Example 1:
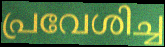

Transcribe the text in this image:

പ്രവേശിച്ച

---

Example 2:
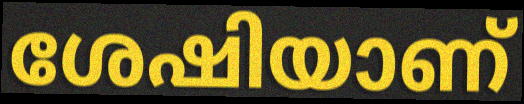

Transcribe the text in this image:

ശേഷിയാണ്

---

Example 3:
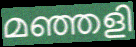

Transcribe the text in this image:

മഞ്ഞളി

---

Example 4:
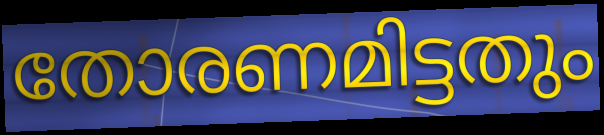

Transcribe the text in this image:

തോരണമിട്ടതും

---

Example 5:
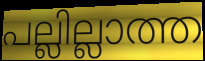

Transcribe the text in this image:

പല്ലില്ലാത്ത